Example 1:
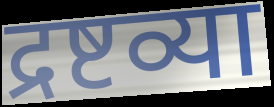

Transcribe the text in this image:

द्रष्टव्या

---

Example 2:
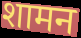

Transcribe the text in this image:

शामन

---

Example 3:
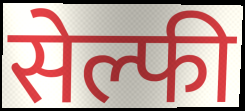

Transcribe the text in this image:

सेल्फी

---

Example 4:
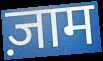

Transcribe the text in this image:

ज़ाम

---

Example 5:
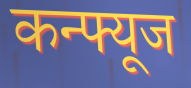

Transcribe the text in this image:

कन्फ्यूज